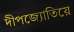
দীপজ্যোতিয়ে